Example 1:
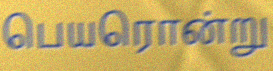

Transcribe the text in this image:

பெயரொன்று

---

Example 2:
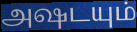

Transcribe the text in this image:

அஷடயும்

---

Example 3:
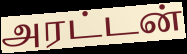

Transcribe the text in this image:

அரட்டன்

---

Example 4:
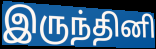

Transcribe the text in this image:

இருந்தினி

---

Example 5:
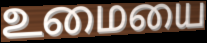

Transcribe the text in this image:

உமையை